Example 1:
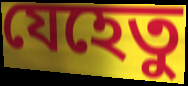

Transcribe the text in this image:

যেহেতু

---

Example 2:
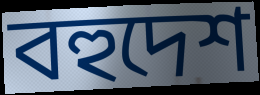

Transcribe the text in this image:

বহুদেশ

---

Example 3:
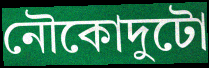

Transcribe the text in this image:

নৌকোদুটো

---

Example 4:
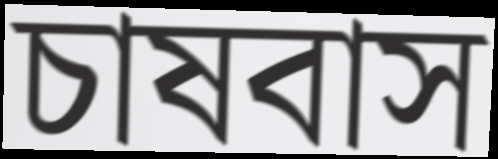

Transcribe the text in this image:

চাষবাস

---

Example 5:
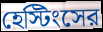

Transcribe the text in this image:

হেস্টিংসের